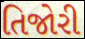
તિજોરી